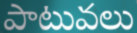
పాటువలు